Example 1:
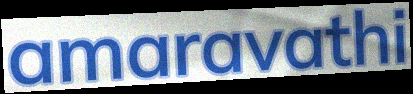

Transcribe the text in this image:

amaravathi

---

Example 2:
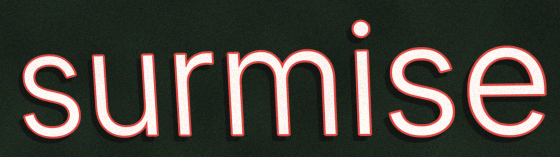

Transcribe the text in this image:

surmise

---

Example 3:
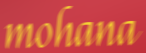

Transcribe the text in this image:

mohana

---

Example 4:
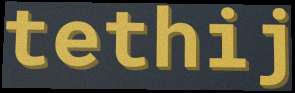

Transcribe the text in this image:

tethij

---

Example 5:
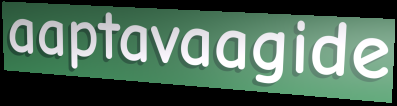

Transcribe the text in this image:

aaptavaagide